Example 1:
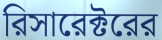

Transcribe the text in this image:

রিসারেক্টরের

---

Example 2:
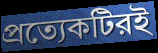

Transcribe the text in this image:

প্রত্যেকটিরই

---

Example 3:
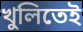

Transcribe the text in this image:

খুলিতেই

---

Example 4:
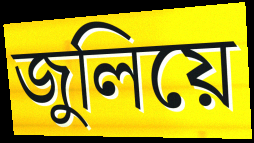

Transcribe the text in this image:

জুলিয়ে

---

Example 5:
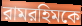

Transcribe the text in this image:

রামরহিমকে